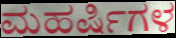
ಮಹರ್ಷಿಗಳ